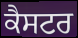
ਕੈਸਟਰ